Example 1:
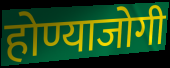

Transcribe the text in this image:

होण्याजोगी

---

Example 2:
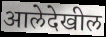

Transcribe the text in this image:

आलेदेखील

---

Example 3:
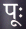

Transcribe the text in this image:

पूः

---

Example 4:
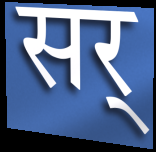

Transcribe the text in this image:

सर्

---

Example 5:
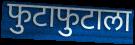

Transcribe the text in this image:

फुटाफुटाला